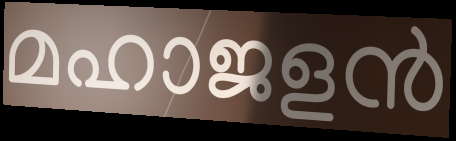
മഹാജളൻ